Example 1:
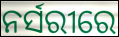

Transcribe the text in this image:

ନର୍ସରୀରେ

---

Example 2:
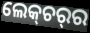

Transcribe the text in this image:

ଲେକ୍‌ଚର୍‌ର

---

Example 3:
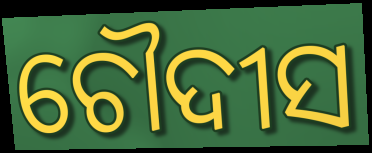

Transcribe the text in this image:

ଚୌଦୀସ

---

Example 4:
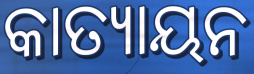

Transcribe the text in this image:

କାତ୍ୟାୟନ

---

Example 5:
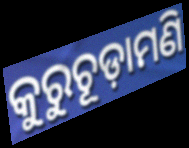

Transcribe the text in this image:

କୁରୁଚୂଡ଼ାମଣି